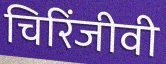
चिरिंजीवी